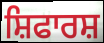
ਸ਼ਿਫਾਰਸ਼